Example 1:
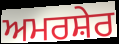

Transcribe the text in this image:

ਅਮਰਸ਼ੇਰ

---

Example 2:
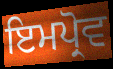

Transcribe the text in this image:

ਇਮਪ੍ਰੋਵ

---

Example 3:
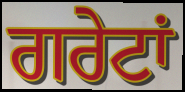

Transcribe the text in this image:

ਗਰੇਟਾਂ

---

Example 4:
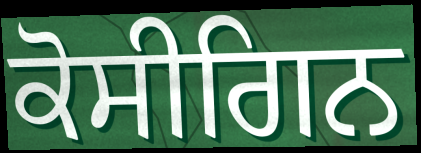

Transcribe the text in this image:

ਕੋਸੀਗਿਨ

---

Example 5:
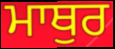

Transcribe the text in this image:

ਮਾਥੁਰ